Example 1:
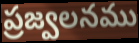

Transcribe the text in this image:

ప్రజ్వలనము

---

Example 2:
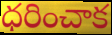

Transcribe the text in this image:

ధరించాక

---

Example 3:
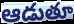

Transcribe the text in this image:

ఆడుతూ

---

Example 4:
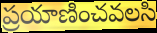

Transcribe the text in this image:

ప్రయాణించవలసి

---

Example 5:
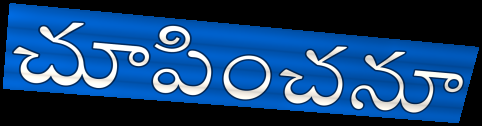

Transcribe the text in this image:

చూపించనూ